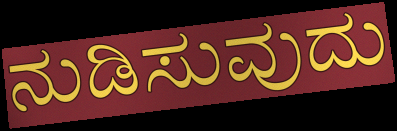
ನುಡಿಸುವುದು